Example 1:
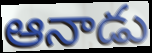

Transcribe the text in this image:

ఆనాడు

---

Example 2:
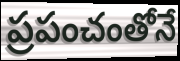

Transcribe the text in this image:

ప్రపంచంతోనే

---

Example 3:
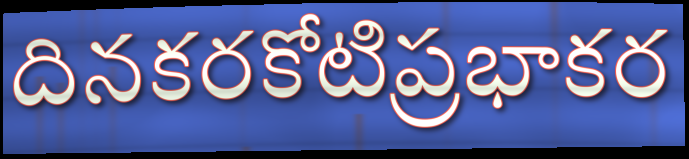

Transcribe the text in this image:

దినకరకోటిప్రభాకర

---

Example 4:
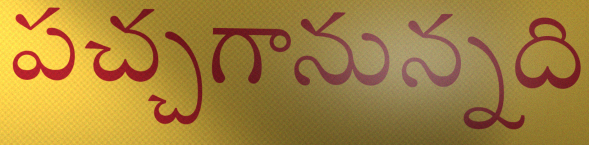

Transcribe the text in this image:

పచ్చగానున్నది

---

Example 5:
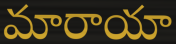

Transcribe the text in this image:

మారాయా